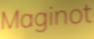
Maginot